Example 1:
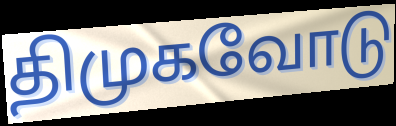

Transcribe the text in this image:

திமுகவோடு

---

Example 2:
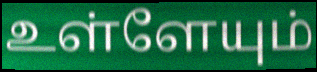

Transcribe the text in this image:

உள்ளேயும்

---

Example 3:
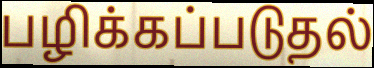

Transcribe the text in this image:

பழிக்கப்படுதல்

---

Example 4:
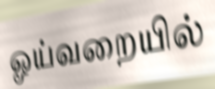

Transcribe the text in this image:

ஓய்வறையில்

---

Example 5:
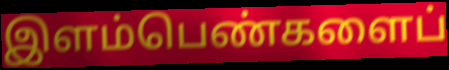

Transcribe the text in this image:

இளம்பெண்களைப்